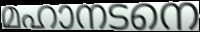
മഹാനടനെ